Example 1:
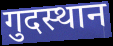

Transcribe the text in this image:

गुदस्थान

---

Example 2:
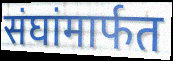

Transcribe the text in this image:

संघांमार्फत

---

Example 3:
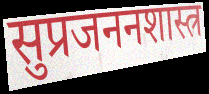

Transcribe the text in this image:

सुप्रजननशास्त्र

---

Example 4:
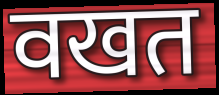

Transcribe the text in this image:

वखत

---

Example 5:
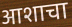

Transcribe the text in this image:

आशाचा